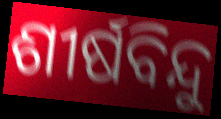
ଶୀର୍ଷବିନ୍ଦୁ